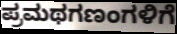
ಪ್ರಮಥಗಣಂಗಳಿಗೆ